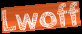
Lwoff